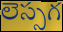
లెస్సగ